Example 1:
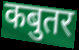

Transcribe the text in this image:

कबुतर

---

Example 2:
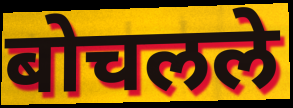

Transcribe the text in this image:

बोचलले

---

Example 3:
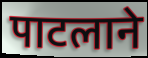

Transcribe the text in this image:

पाटलाने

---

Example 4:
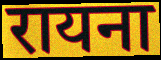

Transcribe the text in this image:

रायना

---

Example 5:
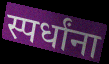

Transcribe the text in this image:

स्पर्धांना